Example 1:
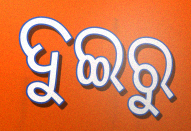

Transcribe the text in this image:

ଦୁଇରୁ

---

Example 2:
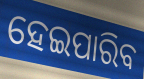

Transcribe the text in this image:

ହେଇପାରିବ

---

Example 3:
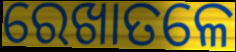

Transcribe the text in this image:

ରେଖାତଳେ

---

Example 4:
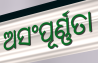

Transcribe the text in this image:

ଅସଂପୂର୍ଣ୍ଣତା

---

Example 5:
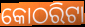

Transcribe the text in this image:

କୋଠରିଟା